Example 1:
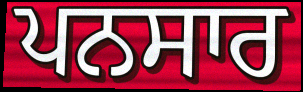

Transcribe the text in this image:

ਪਨਸਾਰ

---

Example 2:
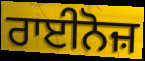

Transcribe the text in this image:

ਰਾਈਨੋਜ਼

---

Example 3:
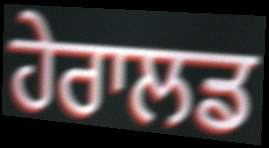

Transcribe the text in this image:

ਹੇਰਾਲਡ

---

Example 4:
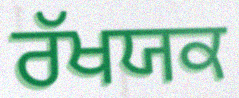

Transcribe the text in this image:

ਰੱਖਯਕ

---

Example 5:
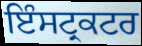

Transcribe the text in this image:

ਇੰਸਟ੍ਰਕਟਰ